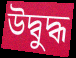
উদ্বুদ্ধ